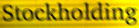
Stockholding